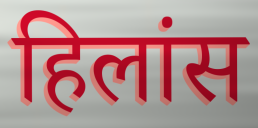
हिलांस